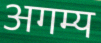
अगम्य